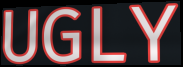
UGLY